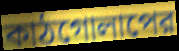
কাঠগোলাপের